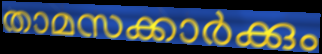
താമസക്കാർക്കും